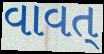
વાવત્